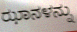
ಝಾನಳನ್ನು